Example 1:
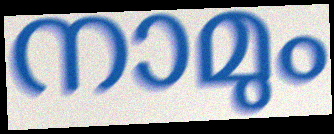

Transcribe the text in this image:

നാമും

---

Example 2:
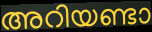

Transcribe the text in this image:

അറിയണ്ടാ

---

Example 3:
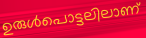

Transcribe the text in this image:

ഉരുൾപൊട്ടലിലാണ്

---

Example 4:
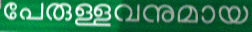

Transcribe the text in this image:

പേരുള്ളവനുമായ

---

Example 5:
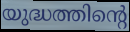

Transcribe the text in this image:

യുദ്ധത്തിന്റെ